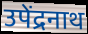
उपेंद्रनाथ